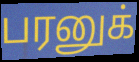
பரனுக்